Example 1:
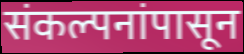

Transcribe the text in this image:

संकल्पनांपासून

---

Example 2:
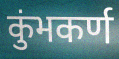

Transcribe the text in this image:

कुंभकर्ण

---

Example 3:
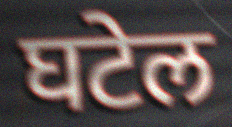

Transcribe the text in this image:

घटेल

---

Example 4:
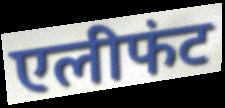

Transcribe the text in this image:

एलीफंट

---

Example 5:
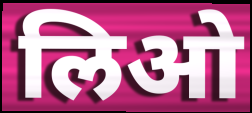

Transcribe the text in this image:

लिओ